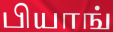
பியாங்